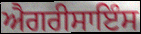
ਐਗਰੀਸਾਇੰਸ